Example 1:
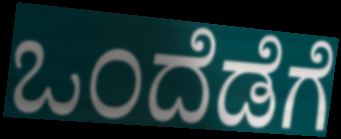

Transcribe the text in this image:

ಒಂದೆಡೆಗೆ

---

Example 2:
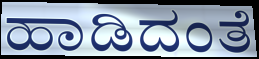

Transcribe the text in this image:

ಹಾಡಿದಂತೆ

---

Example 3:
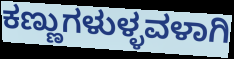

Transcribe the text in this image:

ಕಣ್ಣುಗಳುಳ್ಳವಳಾಗಿ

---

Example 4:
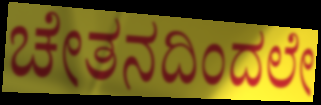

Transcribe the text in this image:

ಚೇತನದಿಂದಲೇ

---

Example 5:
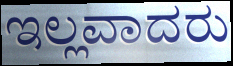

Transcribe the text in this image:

ಇಲ್ಲವಾದರು